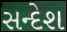
સન્દેશ